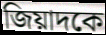
জিয়াদকে